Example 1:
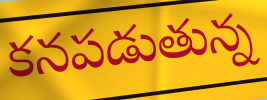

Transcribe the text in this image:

కనపడుతున్న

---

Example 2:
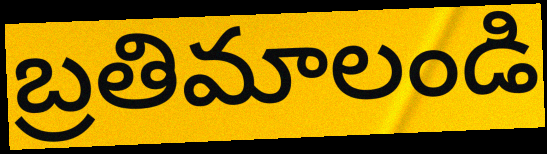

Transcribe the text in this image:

బ్రతిమాలండి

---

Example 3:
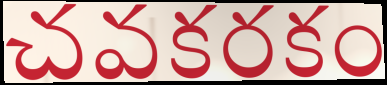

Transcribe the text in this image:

చవకరకం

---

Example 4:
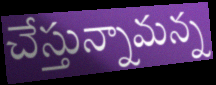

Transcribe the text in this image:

చేస్తున్నామన్న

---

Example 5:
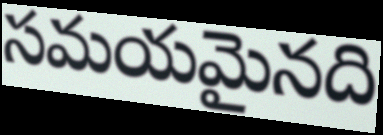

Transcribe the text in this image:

సమయమైనది